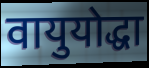
वायुयोद्धा